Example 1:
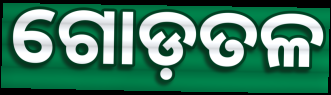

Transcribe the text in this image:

ଗୋଡ଼ତଳ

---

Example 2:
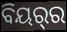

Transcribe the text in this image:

ବିୟର୍‌ର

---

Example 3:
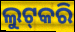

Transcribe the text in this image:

ଲୁଟ୍‌କରି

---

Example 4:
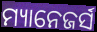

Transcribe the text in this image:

ମ୍ୟାନେଜର୍ସ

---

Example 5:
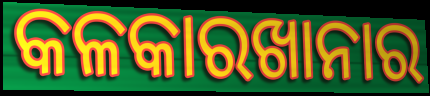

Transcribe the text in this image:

କଳକାରଖାନାର